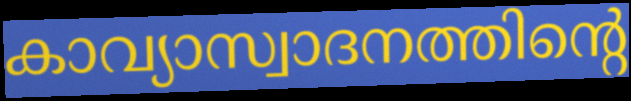
കാവ്യാസ്വാദനത്തിന്റെ